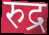
रुद्र